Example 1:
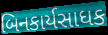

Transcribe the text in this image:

બિનકાર્યસાધક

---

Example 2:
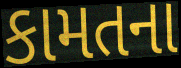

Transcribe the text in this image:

કામતના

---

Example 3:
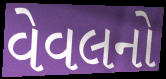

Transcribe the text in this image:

વેવલનો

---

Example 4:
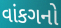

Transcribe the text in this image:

વાંકગનો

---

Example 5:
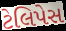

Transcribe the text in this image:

ટેલિપેસ